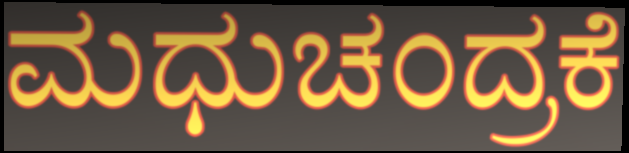
ಮಧುಚಂದ್ರಕೆ